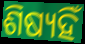
ଶିଷ୍ୟହିଁ